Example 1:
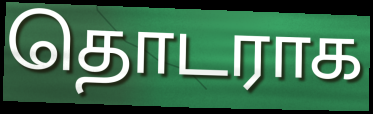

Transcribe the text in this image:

தொடராக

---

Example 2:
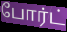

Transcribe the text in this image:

போர்ட்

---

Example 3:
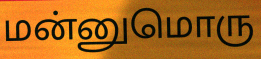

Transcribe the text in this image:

மன்னுமொரு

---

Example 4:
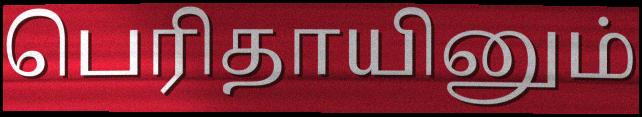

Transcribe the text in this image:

பெரிதாயினும்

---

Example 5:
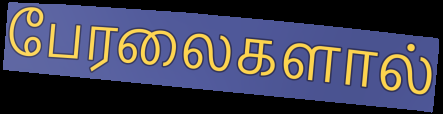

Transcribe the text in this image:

பேரலைகளால்